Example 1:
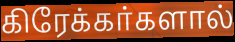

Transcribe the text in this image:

கிரேக்கர்களால்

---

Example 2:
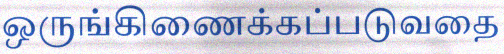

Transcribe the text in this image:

ஒருங்கிணைக்கப்படுவதை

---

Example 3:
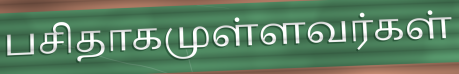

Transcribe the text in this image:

பசிதாகமுள்ளவர்கள்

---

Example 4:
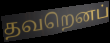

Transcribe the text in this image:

தவறெனப்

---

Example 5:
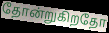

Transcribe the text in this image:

தோன்றுகிறதோ